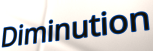
Diminution